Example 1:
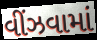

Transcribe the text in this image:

વીંઝવામાં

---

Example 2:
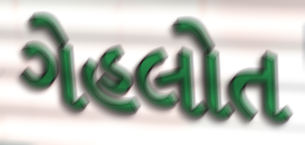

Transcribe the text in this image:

ગેહલોત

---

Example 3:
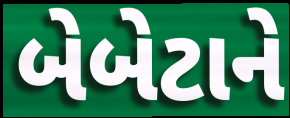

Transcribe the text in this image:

બેબેટાને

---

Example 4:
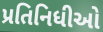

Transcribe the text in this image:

પ્રતિનિધીઓ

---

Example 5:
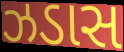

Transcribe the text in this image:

ઝડાસ